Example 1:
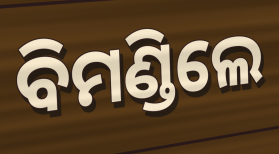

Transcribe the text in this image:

ବିମଣ୍ଡିଲେ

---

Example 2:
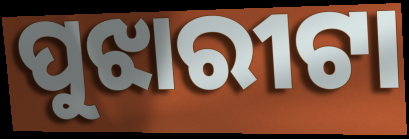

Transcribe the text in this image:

ପୁଝାରୀଟା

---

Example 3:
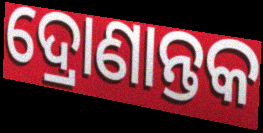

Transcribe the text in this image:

ଦ୍ରୋଣାନ୍ତକ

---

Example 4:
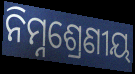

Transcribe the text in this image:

ନିମ୍ନଶ୍ରେଣୀୟ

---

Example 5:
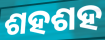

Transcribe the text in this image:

ଶହଶହ